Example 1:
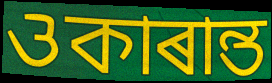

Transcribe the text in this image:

ওকাৰান্ত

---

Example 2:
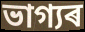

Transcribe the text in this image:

ভাগ্যৰ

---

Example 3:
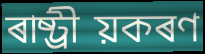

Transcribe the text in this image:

ৰাষ্ট্ৰীয়কৰণ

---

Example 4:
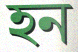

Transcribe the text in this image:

হন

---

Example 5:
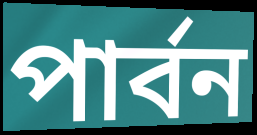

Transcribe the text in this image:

পাৰ্বন